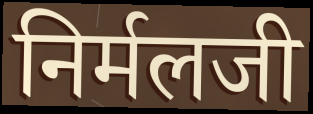
निर्मलजी